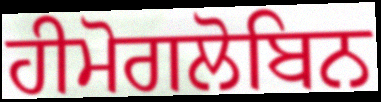
ਹੀਮੋਗਲੋਬਿਨ